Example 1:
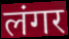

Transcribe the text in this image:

लंगर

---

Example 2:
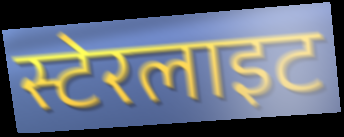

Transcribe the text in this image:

स्टेरलाइट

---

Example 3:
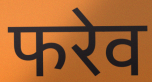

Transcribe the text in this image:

फरेव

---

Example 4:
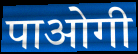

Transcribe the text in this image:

पाओगी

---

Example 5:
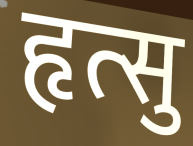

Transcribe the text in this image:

हृत्सु